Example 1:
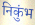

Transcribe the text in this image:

निकुंभ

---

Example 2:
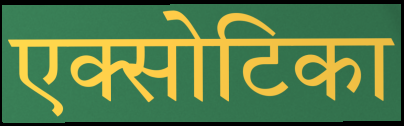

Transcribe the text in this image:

एक्सोटिका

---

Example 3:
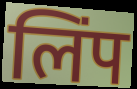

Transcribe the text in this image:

लिंप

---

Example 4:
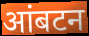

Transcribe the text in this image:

आंबटन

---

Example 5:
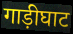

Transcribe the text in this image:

गाड़ीघाट